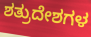
ಶತ್ರುದೇಶಗಳ